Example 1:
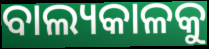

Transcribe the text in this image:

ବାଲ୍ୟକାଳକୁ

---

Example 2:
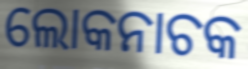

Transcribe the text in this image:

ଲୋକନାଚକ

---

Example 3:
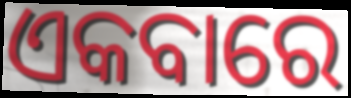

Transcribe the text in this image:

ଏକବାରେ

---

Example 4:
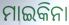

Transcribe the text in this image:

ମାଇକିନା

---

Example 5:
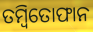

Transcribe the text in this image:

ତମ୍ବିତୋଫାନ